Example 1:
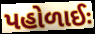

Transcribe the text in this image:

પહોળાઈઃ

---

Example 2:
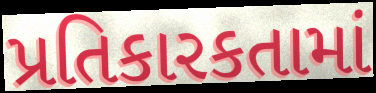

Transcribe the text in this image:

પ્રતિકારકતામાં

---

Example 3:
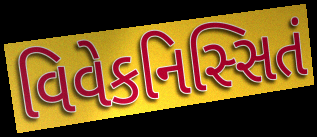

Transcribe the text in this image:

વિવેકનિસ્સિતં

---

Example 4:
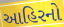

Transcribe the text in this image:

આહિરનો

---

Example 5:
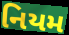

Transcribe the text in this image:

નિયમ